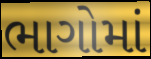
ભાગોમાં